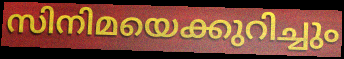
സിനിമയെക്കുറിച്ചും